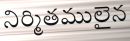
నిర్మితములైన